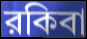
রকিবা